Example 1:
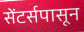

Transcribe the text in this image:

सेंटर्सपासून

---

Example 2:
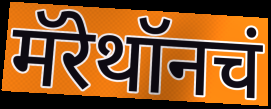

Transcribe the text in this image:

मॅरेथॉनचं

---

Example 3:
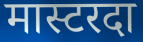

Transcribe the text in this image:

मास्टरदा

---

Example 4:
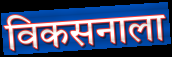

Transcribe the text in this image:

विकसनाला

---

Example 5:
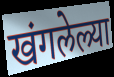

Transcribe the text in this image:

खंगलेल्या